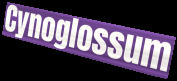
Cynoglossum